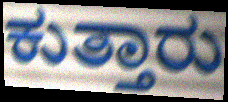
ಕುತ್ತಾರು